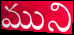
ముని